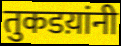
तुकडय़ांनी